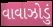
વાવાઝોડું